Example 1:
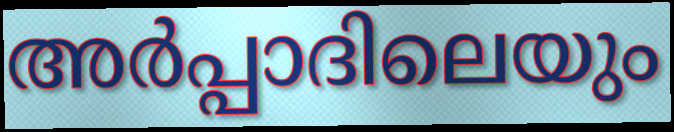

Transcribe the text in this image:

അർപ്പാദിലെയും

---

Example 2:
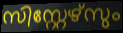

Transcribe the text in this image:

സിസ്റ്റേഴ്സും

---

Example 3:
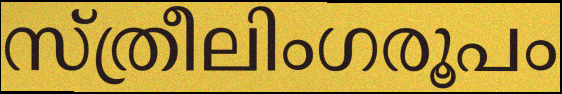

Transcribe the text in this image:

സ്ത്രീലിംഗരൂപം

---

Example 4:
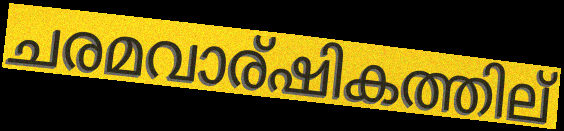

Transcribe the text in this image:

ചരമവാര്ഷികത്തില്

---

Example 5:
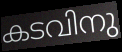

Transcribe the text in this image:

കടവിനു